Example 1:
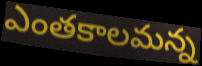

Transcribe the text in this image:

ఎంతకాలమన్న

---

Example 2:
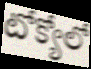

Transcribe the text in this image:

టోక్యోలో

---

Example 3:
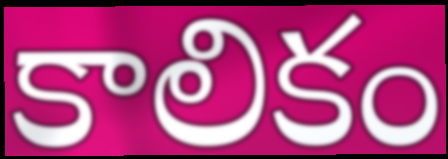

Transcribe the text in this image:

కాలికం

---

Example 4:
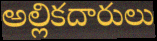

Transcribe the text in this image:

అల్లికదారులు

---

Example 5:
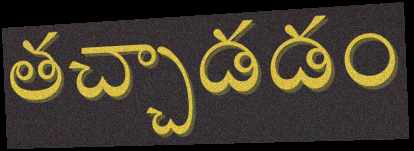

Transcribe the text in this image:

తచ్చాడడం